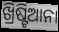
ଖ୍ରିଷ୍ଟିଆନା